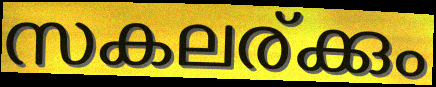
സകലര്ക്കും